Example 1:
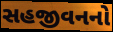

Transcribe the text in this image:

સહજીવનનો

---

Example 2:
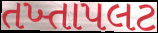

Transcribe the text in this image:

તખ્તાપલટ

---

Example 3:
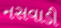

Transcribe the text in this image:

નસવાડી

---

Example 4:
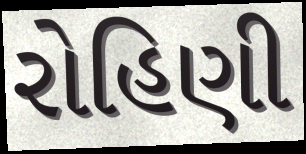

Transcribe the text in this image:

રોહિણી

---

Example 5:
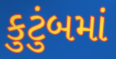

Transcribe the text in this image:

કુટુંબમાં